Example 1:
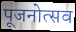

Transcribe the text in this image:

पूजनोत्सव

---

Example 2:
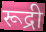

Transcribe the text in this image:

रूद्री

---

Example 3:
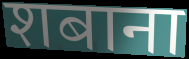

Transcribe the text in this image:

शबाना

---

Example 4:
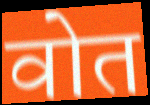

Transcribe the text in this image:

वोत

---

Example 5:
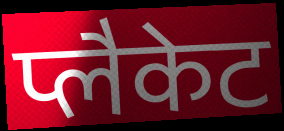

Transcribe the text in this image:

प्लैकेट